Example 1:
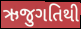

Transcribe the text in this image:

ઋજુગતિથી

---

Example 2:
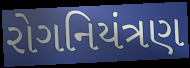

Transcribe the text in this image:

રોગનિયંત્રણ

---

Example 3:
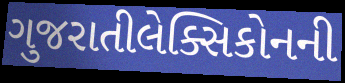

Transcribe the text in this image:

ગુજરાતીલેક્સિકોનની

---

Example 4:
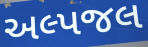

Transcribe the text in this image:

અલ્પજલ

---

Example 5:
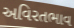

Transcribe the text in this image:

અવિરતભાવ